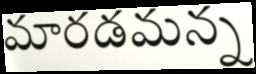
మారడమన్న